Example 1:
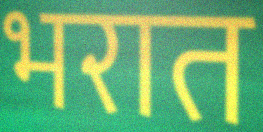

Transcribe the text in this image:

भरात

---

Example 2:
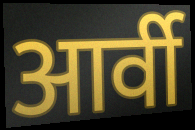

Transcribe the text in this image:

आर्वी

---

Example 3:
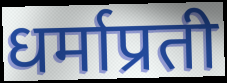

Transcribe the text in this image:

धर्माप्रती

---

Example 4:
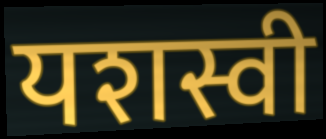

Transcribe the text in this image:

यशस्वी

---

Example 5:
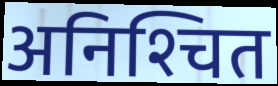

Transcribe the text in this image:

अनिश्चित